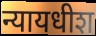
न्यायधीश